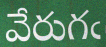
వేరుగఁ